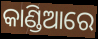
କାଣ୍ଡିଆରେ